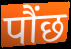
पौंछ